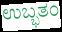
ಉಬ್ಭತಂ